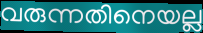
വരുന്നതിനെയല്ല